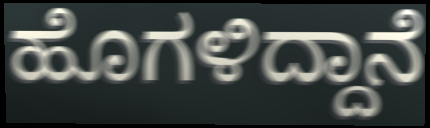
ಹೊಗಳಿದ್ದಾನೆ